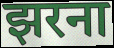
झरना